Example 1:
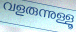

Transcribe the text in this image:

വളരുന്നുള്ളൂ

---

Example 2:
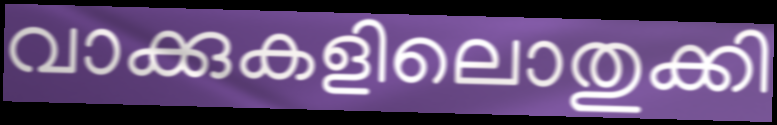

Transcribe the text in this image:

വാക്കുകളിലൊതുക്കി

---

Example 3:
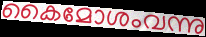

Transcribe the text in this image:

കൈമോശംവന്നു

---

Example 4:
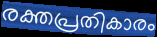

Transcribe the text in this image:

രക്തപ്രതികാരം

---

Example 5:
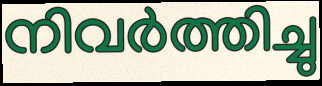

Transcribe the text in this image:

നിവർത്തിച്ചു